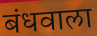
बंधवाला